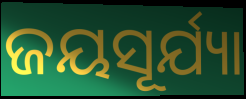
ଜୟସୂର୍ଯ୍ୟା